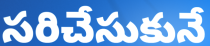
సరిచేసుకునే